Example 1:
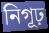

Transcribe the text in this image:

নিগূঢ়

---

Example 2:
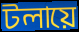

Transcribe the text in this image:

টলায়ে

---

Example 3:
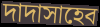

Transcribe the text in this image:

দাদাসাহেব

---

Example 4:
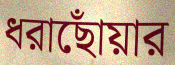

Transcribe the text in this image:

ধরাছোঁয়ার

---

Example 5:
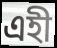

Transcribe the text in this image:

এহী